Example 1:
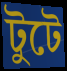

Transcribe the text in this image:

টুটে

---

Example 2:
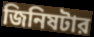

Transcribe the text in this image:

জিনিষটার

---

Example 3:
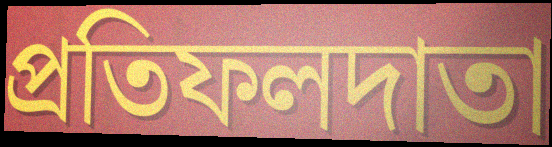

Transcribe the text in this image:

প্রতিফলদাতা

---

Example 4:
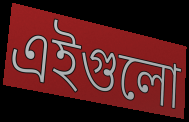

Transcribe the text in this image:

এইগুলো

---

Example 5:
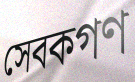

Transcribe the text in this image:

সেবকগণ